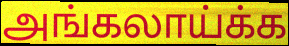
அங்கலாய்க்க